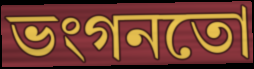
ভংগনতো